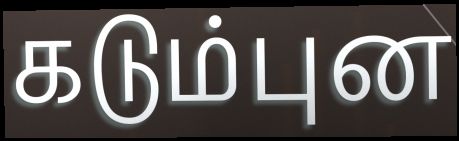
கடும்புன